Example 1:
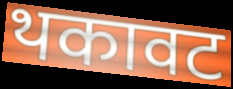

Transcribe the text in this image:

थकावट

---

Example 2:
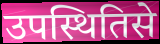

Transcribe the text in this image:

उपस्थितिसे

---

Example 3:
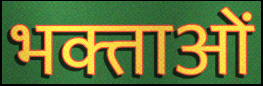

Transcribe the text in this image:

भक्ताओं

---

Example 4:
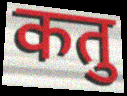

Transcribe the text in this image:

कतु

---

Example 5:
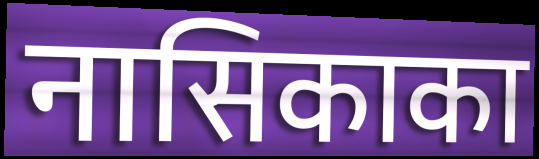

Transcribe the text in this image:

नासिकाका